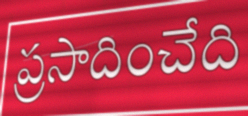
ప్రసాదించేది